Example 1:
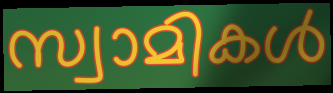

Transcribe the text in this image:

സ്വാമികൾ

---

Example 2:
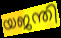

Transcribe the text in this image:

യജന്തി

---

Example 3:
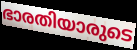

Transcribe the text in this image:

ഭാരതിയാരുടെ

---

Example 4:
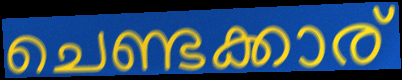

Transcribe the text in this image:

ചെണ്ടക്കാര്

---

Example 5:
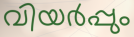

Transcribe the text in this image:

വിയർപ്പും